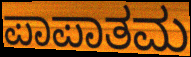
ಪಾಪಾತಮ